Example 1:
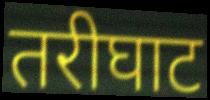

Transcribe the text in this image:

तरीघाट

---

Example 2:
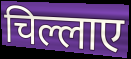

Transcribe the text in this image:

चिल्लाए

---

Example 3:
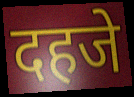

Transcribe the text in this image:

दहजे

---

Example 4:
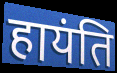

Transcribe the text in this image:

हायंति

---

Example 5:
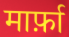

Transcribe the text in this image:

मार्फ़ा